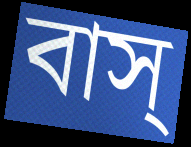
বাস্